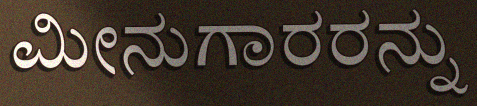
ಮೀನುಗಾರರನ್ನು